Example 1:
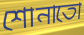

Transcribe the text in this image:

শোনাতো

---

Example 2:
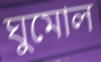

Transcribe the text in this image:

ঘুমোল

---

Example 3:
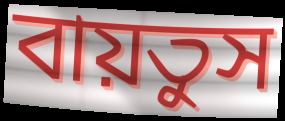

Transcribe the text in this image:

বায়তুস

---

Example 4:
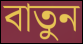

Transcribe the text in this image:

বাতুন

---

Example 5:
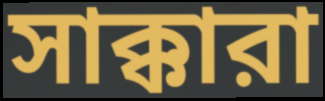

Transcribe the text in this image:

সাক্কারা